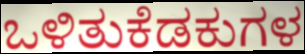
ಒಳಿತುಕೆಡಕುಗಳ